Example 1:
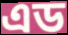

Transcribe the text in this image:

এড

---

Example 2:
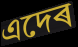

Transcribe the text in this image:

এদেৰ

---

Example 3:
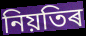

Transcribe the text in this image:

নিয়তিৰ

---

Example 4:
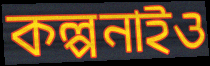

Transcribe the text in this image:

কল্পনাইও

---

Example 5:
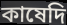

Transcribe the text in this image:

কাষেদি